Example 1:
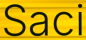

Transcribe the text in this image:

Saci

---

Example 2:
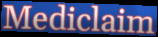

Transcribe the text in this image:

Mediclaim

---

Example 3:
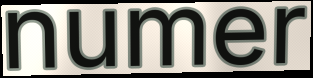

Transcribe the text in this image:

numer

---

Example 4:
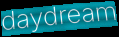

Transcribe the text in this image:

daydream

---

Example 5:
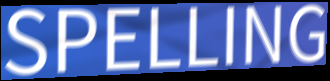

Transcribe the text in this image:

SPELLING